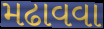
મઢાવવા